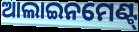
ଆଲାଇନମେଣ୍ଟ୍